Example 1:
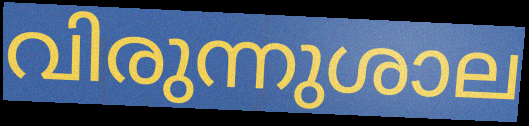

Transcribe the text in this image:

വിരുന്നുശാല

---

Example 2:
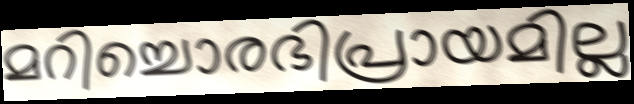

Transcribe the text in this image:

മറിച്ചൊരഭിപ്രായമില്ല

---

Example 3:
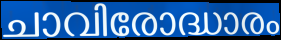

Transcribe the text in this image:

ചാവിരോദ്ധാരം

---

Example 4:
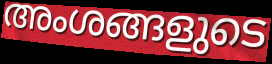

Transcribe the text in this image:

അംശങ്ങളുടെ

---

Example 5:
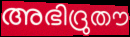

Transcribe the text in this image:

അഭിദ്രുതൗ